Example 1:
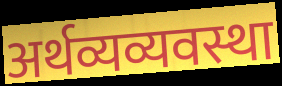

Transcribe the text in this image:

अर्थव्यव्यवस्था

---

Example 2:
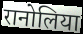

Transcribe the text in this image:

रानोलिया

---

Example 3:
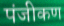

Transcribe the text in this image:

पंजीकण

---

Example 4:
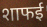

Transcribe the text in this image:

शाफई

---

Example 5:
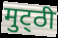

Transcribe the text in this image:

मुट्‌ठी